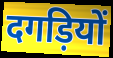
दगड़ियों